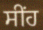
ਸੀਂਹ